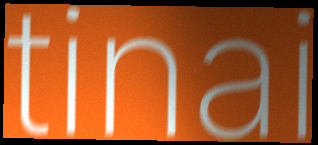
tinai